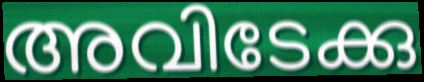
അവിടേക്കു